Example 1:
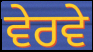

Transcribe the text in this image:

ਵੇਰਵੇ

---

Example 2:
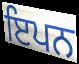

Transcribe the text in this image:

ਇਪਨ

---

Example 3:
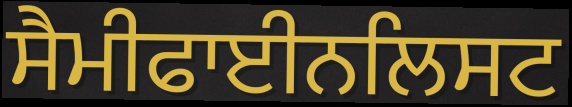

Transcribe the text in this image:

ਸੈਮੀਫਾਈਨਲਿਸਟ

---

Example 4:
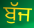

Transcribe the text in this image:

ਬੁੱਜ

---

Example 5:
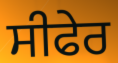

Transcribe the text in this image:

ਸੀਫੇਰ